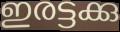
ഇരട്ടക്കു